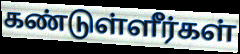
கண்டுள்ளீர்கள்